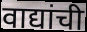
वाद्यांची